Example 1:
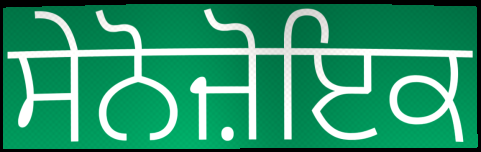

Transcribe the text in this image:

ਸੇਨੋਜ਼ੋਇਕ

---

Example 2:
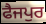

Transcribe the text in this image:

ਫੈਜਪੁਰ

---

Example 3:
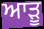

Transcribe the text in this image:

ਆੜੂ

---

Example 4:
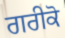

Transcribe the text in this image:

ਗਰੀਕੋ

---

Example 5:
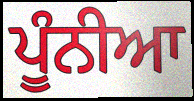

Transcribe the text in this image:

ਪੂੰਨੀਆ